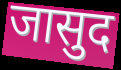
जासुद